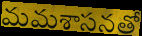
మమశాసనతో